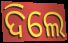
ଦିଲେ